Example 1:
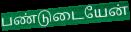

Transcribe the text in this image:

பண்டுடையேன்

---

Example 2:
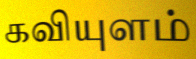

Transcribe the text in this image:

கவியுளம்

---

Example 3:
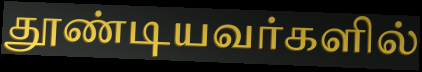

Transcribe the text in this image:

தூண்டியவர்களில்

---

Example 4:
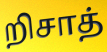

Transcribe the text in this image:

றிசாத்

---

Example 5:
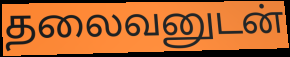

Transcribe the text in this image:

தலைவனுடன்